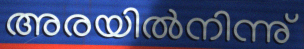
അരയിൽനിന്നു്